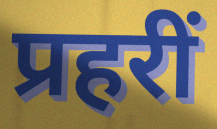
प्रहरीं